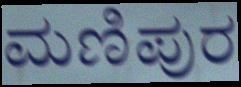
ಮಣಿಪುರ